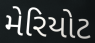
મેરિયોટ